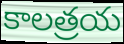
కాలత్రయ